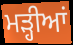
ਮੜ੍ਹੀਆਂ